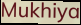
Mukhiya